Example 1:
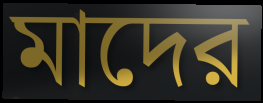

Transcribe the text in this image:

মাদের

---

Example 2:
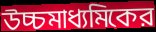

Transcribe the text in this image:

উচ্চমাধ্যমিকের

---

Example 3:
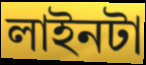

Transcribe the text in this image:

লাইনটা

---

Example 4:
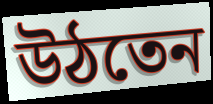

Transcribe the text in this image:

উঠতেন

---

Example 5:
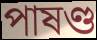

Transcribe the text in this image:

পাষণ্ড